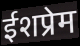
ईशप्रेम